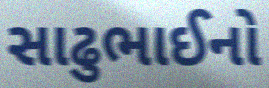
સાઢુભાઈનો